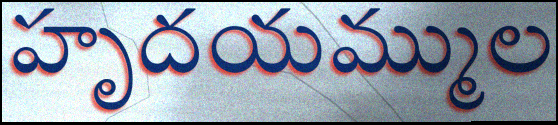
హృదయమ్ముల